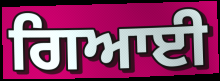
ਗਿਆਈ